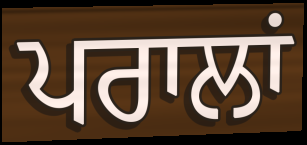
ਪਰਾਲਾਂ